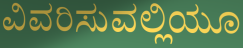
ವಿವರಿಸುವಲ್ಲಿಯೂ